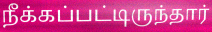
நீக்கப்பட்டிருந்தார்